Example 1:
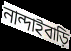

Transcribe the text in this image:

নান্দাইবাড়ি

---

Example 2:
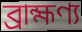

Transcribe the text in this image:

ব্রাহ্মণ্য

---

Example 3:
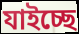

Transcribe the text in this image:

যাইচ্ছে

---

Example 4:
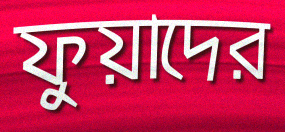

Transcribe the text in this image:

ফুয়াদের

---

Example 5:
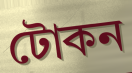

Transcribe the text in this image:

টোকন